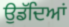
ਉਡੱਦਿਆਂ